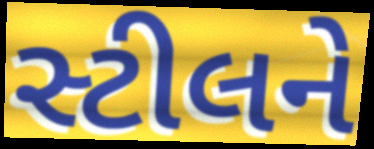
સ્ટીલને